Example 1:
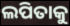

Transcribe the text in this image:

ଲପିତାକୁ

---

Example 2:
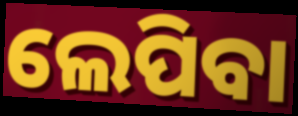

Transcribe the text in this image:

ଲେପିବା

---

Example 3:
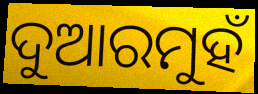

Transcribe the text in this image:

ଦୁଆରମୁହଁ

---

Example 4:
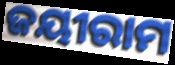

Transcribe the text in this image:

ଜୟୀରାମ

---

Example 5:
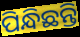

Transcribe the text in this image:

ପିନ୍ଧିଛନ୍ତି